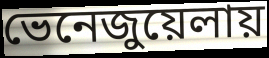
ভেনেজুয়েলায়